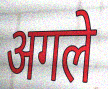
अगले